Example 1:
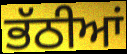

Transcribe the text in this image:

ਭੱਠੀਆਂ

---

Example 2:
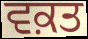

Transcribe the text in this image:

ਵਕ਼ਤ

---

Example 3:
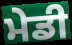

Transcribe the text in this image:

ਮੇਡੀ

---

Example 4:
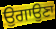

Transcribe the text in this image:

ਉਗਾਉਣਾ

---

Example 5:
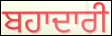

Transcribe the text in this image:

ਬਹਾਦਾਰੀ